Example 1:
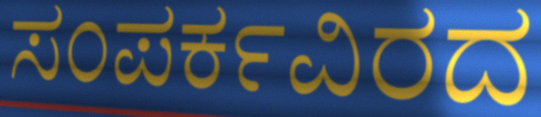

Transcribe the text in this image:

ಸಂಪರ್ಕವಿರದ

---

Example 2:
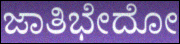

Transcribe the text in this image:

ಜಾತಿಭೇದೋ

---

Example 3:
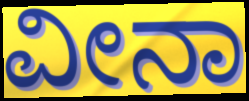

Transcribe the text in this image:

ವೀನಾ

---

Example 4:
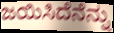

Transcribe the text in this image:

ಜಯಿಸಿದೆನೆನ್ನು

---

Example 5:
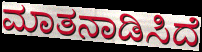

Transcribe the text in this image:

ಮಾತನಾಡಿಸಿದೆ